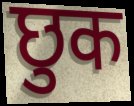
छुक